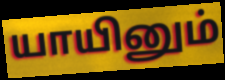
யாயினும்